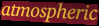
atmospheric